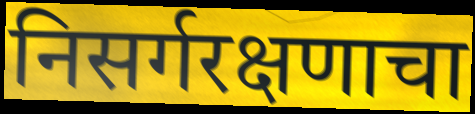
निसर्गरक्षणाचा